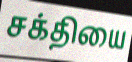
சக்தியை